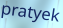
pratyek